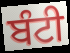
ਬੰਟੀ